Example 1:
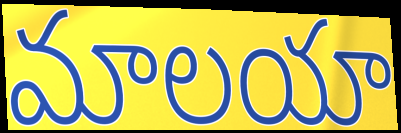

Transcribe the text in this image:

మాలయా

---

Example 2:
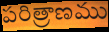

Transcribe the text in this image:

పరిత్రాణము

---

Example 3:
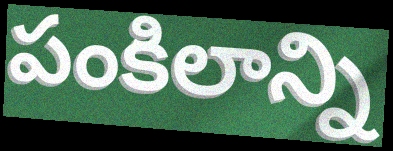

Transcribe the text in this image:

పంకిలాన్ని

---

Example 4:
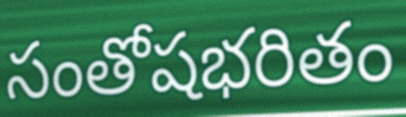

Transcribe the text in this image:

సంతోషభరితం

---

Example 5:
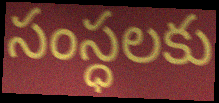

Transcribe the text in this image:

సంస్ధలకు